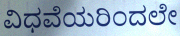
ವಿಧವೆಯರಿಂದಲೇ